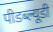
पीडब्ल्यूडी